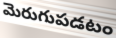
మెరుగుపడటం